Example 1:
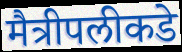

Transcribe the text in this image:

मैत्रीपलीकडे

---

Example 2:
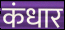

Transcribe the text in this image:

कंधार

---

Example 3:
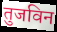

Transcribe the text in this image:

तुजविन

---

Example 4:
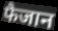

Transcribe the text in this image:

फैजान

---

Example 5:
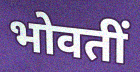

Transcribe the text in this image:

भोवतीं